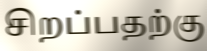
சிறப்பதற்கு